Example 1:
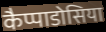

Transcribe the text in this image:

कैप्पाडोसिया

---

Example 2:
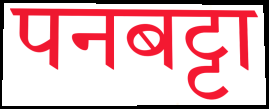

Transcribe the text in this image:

पनबट्टा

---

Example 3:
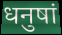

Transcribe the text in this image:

धनुषां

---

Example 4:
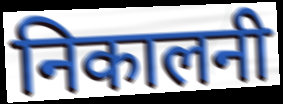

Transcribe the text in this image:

निकालनी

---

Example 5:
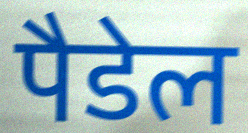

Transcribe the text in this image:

पैडेल